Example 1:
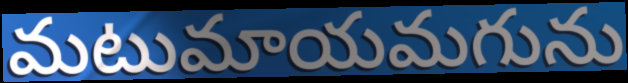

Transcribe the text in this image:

మటుమాయమగును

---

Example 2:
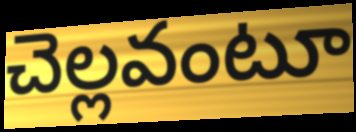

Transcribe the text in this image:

చెల్లవంటూ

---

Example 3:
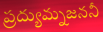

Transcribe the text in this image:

ప్రద్యుమ్నజననీ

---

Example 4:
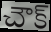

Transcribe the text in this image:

చౌక్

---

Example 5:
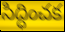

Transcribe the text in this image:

సిద్ధించక